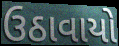
ઉઠાવાયો